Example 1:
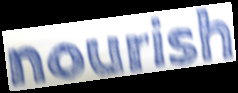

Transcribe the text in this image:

nourish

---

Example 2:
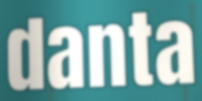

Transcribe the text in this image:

danta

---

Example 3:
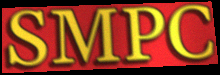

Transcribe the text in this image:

SMPC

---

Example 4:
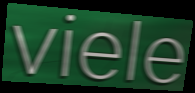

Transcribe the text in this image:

viele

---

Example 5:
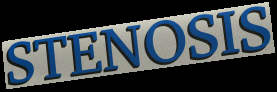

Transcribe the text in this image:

STENOSIS